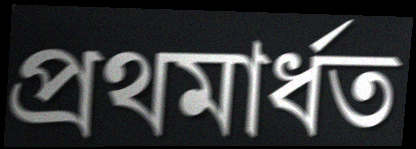
প্ৰথমাৰ্ধত